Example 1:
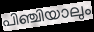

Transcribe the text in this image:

പിഞ്ചിയാലും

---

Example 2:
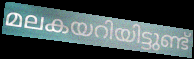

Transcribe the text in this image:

മലകയറിയിട്ടുണ്ട്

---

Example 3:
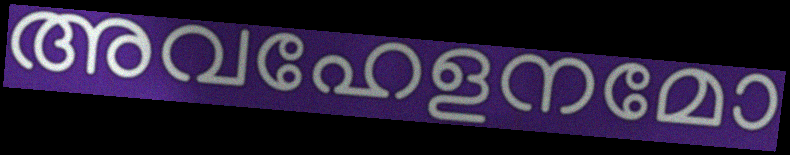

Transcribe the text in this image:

അവഹേളനമോ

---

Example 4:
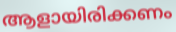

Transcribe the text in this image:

ആളായിരിക്കണം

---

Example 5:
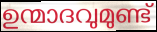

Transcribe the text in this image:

ഉന്മാദവുമുണ്ട്